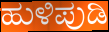
ಹುಳಿಪುಡಿ